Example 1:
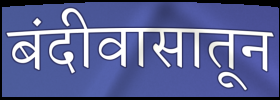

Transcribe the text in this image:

बंदीवासातून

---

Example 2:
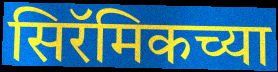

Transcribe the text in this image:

सिरॅमिकच्या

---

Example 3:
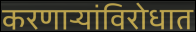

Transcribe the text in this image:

करणाऱ्यांविरोधात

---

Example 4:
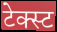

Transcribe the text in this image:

टेक्स्ट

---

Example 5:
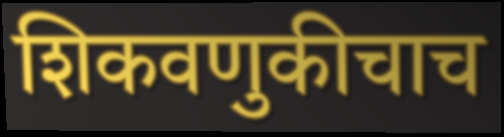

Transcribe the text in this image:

शिकवणुकीचाच